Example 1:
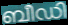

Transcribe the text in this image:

ബീഡി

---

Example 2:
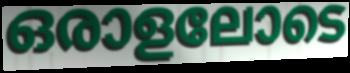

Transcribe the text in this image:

ഒരാളലോടെ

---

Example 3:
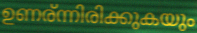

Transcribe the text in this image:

ഉണര്ന്നിരിക്കുകയും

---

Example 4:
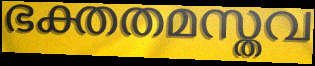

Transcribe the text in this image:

ഭക്തതമസ്തവ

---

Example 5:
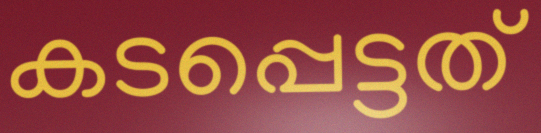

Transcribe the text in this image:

കടപ്പെട്ടത്